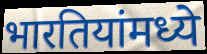
भारतियांमध्ये